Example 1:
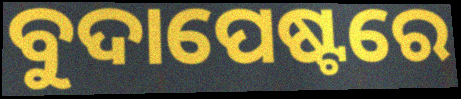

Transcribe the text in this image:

ବୁଦାପେଷ୍ଟରେ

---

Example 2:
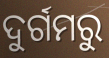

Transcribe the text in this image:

ଦୁର୍ଗମରୁ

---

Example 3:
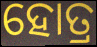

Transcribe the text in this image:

ହୋତ୍ର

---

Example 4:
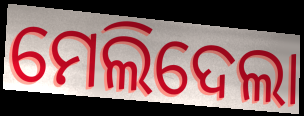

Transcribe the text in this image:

ମେଲିଦେଲା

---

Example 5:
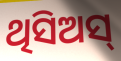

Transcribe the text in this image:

ଥିସିଅସ୍